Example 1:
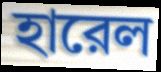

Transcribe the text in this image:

হারেল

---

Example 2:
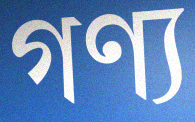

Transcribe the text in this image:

গণ্য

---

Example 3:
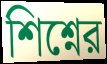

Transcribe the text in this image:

শিশ্নের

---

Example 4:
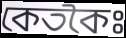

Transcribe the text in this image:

কেতকৈঃ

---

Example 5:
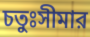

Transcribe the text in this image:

চতুঃসীমার